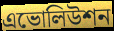
এভোলিউশন